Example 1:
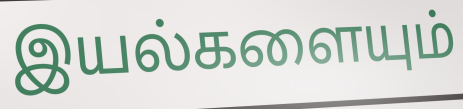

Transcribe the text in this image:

இயல்களையும்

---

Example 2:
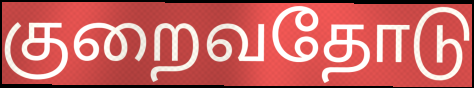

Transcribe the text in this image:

குறைவதோடு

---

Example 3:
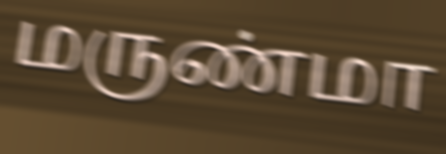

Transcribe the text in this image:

மருண்மா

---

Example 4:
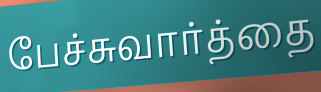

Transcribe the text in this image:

பேச்சுவார்த்தை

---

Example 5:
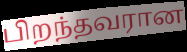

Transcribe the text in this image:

பிறந்தவரான